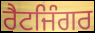
ਰੈਟਜਿੰਗਰ